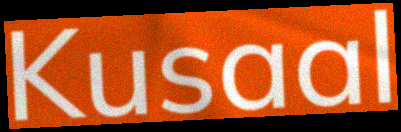
Kusaal